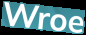
Wroe